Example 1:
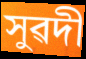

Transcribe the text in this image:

সুৱদী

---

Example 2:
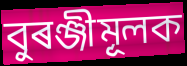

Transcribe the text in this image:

বুৰঞ্জীমূলক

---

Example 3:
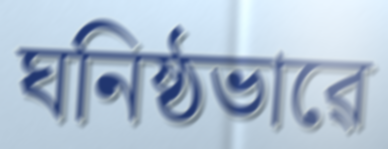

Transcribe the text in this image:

ঘনিষ্ঠভাৱে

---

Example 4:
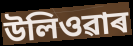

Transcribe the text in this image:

উলিওৱাৰ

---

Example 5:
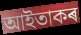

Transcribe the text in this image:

আইতাকৰ